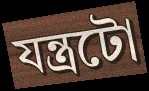
যন্ত্ৰটো